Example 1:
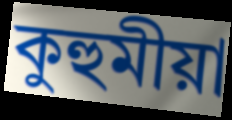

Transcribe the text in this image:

কুহুমীয়া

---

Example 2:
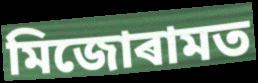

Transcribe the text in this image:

মিজোৰামত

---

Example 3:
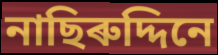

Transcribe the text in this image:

নাছিৰুদ্দিনে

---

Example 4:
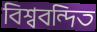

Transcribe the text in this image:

বিশ্ববন্দিত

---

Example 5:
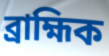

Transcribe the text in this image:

ব্ৰাহ্মিক